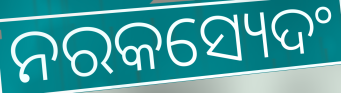
ନରକସ୍ୟେଦଂ